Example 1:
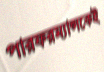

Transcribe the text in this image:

পারফরম্যান্সকেই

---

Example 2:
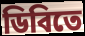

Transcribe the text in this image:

ডিবিতে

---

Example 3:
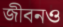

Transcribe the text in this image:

জীবনও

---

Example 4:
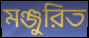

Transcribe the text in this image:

মঞ্জুরিত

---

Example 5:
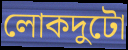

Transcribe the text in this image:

লোকদুটো